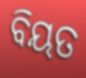
ବିୟତ